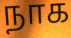
நாக